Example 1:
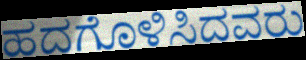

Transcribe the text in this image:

ಹದಗೊಳಿಸಿದವರು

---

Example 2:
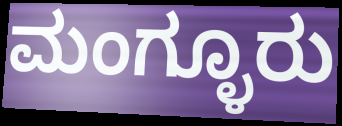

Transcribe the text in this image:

ಮಂಗ್ಳೂರು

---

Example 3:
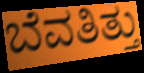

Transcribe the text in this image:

ಬೆವತಿತ್ತು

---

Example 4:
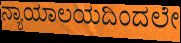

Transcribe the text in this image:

ನ್ಯಾಯಾಲಯದಿಂದಲೇ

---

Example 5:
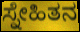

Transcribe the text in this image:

ಸ್ನೇಹಿತನ